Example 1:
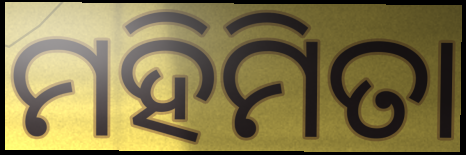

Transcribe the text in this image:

ମହିମିତା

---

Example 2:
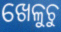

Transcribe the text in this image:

ଖେଳୁଚୁ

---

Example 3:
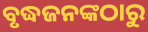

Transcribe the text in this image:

ବୃଦ୍ଧଜନଙ୍କଠାରୁ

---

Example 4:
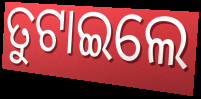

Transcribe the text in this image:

ତୁଟାଇଲେ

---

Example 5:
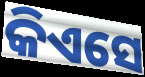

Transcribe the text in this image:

କିଏସେ